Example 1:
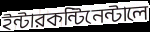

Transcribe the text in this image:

ইন্টারকন্টিনেন্টালে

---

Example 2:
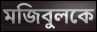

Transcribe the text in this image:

মজিবুলকে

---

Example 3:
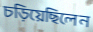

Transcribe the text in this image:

চড়িয়েছিলেন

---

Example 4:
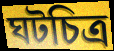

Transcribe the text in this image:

ঘটচিত্র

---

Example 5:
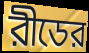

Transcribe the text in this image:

রীডের